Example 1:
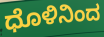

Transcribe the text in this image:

ಧೊಳಿನಿಂದ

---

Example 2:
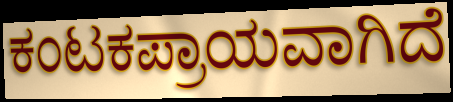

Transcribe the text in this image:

ಕಂಟಕಪ್ರಾಯವಾಗಿದೆ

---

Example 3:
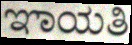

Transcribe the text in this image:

ಞಾಯತಿ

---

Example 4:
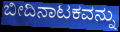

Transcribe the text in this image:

ಬೀದಿನಾಟಕವನ್ನು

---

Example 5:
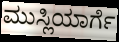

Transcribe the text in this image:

ಮುಸ್ಲಿಯಾರ್ಗೆ